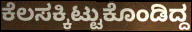
ಕೆಲಸಕ್ಕಿಟ್ಟುಕೊಂಡಿದ್ದ